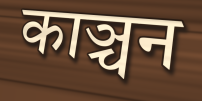
काञ्चन